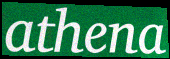
athena